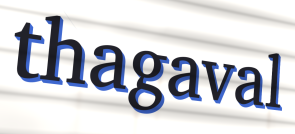
thagaval